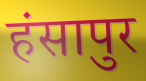
हंसापुर